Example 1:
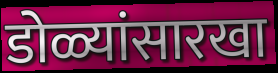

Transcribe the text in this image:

डोळ्यांसारखा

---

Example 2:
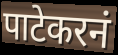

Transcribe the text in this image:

पाटेकरनं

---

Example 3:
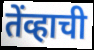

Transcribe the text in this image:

तेंव्हाची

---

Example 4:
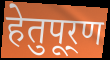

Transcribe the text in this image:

हेतुपूर्ण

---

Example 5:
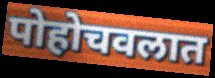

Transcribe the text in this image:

पोहोचवलात